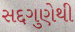
સદ્દગુણેથી